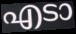
എടാ